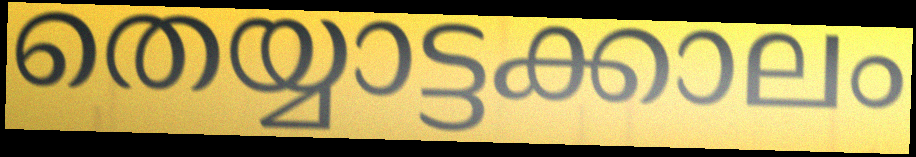
തെയ്യാട്ടക്കാലം